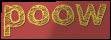
poow